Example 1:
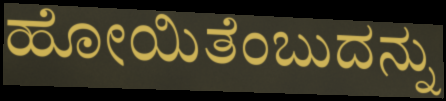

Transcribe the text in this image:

ಹೋಯಿತೆಂಬುದನ್ನು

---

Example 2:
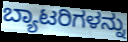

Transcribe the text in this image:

ಬ್ಯಾಟರಿಗಳನ್ನು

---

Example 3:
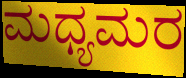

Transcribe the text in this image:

ಮಧ್ಯಮರ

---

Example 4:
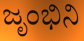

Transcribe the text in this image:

ಜೃಂಭಿನಿ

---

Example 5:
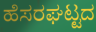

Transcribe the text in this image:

ಹೆಸರಘಟ್ಟದ